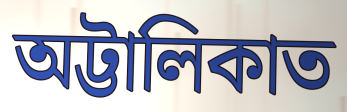
অট্টালিকাত